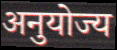
अनुयोज्य